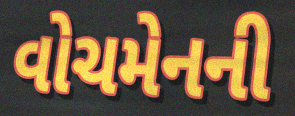
વોચમેનની